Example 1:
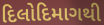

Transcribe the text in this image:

દિલોદિમાગથી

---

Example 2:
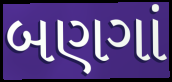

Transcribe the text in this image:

બણગાં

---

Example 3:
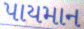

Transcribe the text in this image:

પાયમાન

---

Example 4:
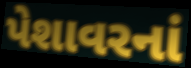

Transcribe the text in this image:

પેશાવરનાં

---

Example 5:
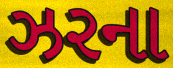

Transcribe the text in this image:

ઝરના